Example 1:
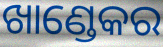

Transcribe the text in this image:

ଖାଣ୍ଡେକର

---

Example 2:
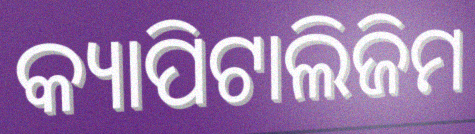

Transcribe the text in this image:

କ୍ୟାପିଟାଲିଜିମ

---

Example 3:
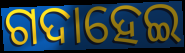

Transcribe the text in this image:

ଗଦାହେଇ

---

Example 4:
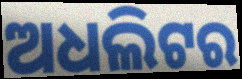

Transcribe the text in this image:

ଅଧଲିଟର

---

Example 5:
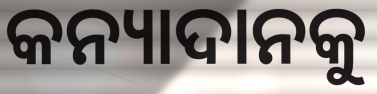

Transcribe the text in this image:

କନ୍ୟାଦାନକୁ